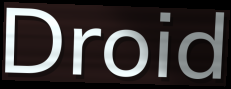
Droid